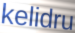
kelidru